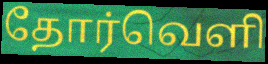
தோர்வெளி